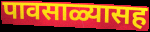
पावसाळ्यासह